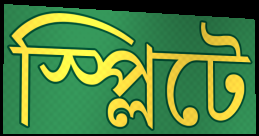
স্প্লিটে